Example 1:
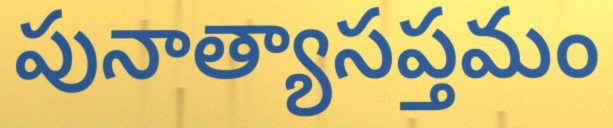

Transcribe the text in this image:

పునాత్యాసప్తమం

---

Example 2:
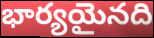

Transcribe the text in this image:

భార్యయైనది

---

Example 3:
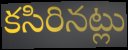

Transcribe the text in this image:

కసిరినట్లు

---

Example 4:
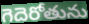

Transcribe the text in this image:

గెదెరోతును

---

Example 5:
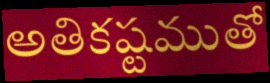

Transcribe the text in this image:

అతికష్టముతో